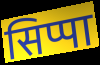
सिप्पा